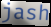
jash